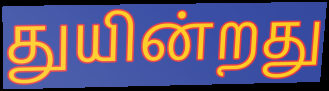
துயின்றது